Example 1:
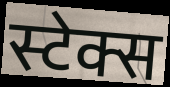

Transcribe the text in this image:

स्टेक्स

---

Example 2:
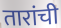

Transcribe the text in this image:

तारांची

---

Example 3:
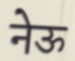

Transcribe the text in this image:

नेऊ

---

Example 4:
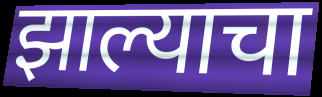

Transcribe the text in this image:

झाल्‍याचा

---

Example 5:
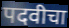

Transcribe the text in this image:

पदवीचा